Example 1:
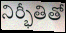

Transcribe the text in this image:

నిర్భీతితో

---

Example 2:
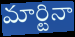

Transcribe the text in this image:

మార్టినా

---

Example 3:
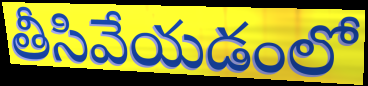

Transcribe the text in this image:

తీసివేయడంలో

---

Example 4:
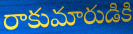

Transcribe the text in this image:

రాకుమారుడికి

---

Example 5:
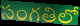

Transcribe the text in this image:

సంగతిలో